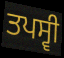
ਤਪਸ੍ਵੀ